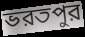
ভরতপুর